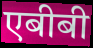
एबीबी